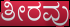
ತೀರವು